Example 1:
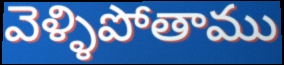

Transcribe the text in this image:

వెళ్ళిపోతాము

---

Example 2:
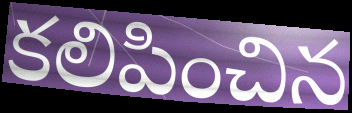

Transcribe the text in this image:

కలిపించిన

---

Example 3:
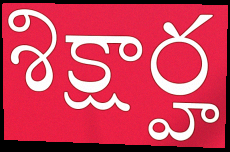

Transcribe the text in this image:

శిక్షార్హ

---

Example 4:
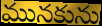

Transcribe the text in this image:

మునకును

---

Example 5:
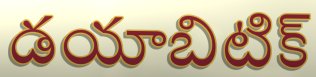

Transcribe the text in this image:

డయాబిటిక్